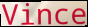
Vince